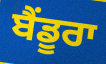
ਬੈਂਡੂਰਾ